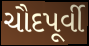
ચૌદપૂર્વી